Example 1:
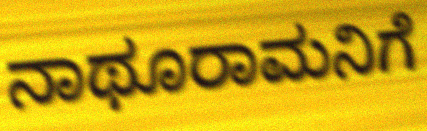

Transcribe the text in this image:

ನಾಥೂರಾಮನಿಗೆ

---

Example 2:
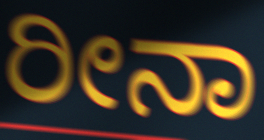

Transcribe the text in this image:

ರೀನಾ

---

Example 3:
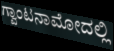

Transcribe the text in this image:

ಗ್ವಾಂಟನಾಮೋದಲ್ಲಿ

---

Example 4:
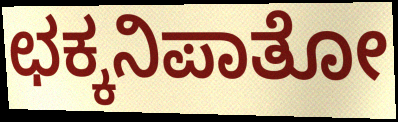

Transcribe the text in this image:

ಛಕ್ಕನಿಪಾತೋ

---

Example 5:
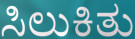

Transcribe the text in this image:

ಸಿಲುಕಿತು